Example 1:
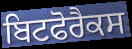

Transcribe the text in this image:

ਬਿਟਫੋਰੈਕਸ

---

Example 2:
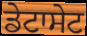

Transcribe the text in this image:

ਡੇਟਾਸੇਟ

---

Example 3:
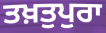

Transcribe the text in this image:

ਤਖ਼ਤੁਪੁਰਾ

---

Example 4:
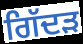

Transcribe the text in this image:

ਗਿੱਦਡ਼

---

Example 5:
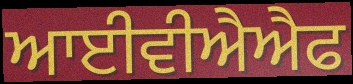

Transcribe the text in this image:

ਆਈਵੀਐਐਫ